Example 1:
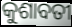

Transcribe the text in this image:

କୁଶାବତୀ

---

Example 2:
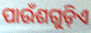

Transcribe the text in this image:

ପାଉଁଶଗୁଡ଼ିଏ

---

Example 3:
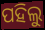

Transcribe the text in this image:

ପହିଲୁ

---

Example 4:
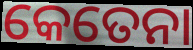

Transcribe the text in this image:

କେତେନା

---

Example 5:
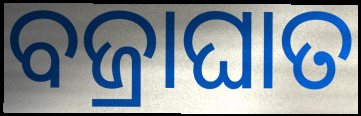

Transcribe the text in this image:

ବଜ୍ରାଘାତ